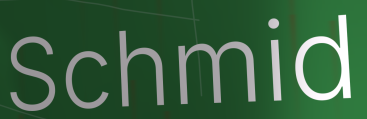
Schmid